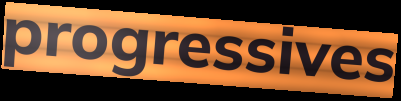
progressives